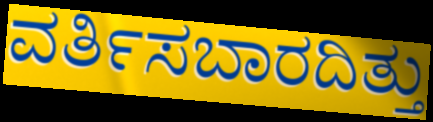
ವರ್ತಿಸಬಾರದಿತ್ತು